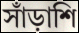
সাঁড়াশি